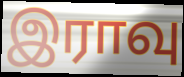
இராவு